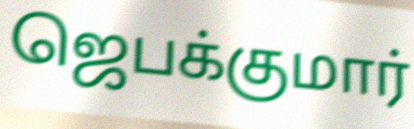
ஜெபக்குமார்